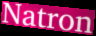
Natron